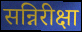
सन्निरीक्षा